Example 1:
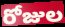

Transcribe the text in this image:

రోజుల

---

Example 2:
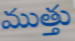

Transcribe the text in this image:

ముత్తు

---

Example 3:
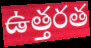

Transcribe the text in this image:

ఉత్తరత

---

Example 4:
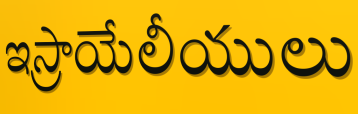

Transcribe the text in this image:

ఇస్రాయేలీయులు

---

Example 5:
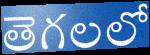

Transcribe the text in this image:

తెగలలో